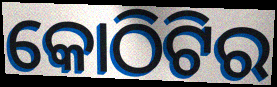
କୋଠିଟିର